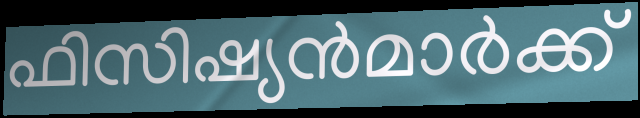
ഫിസിഷ്യൻമാർക്ക്